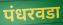
पंधरवडा